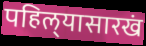
पहिल्यासारखं